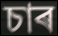
চাৰ